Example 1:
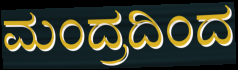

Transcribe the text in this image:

ಮಂದ್ರದಿಂದ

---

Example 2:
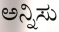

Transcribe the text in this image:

ಅನ್ನಿಸು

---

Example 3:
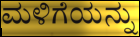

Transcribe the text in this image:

ಮಳಿಗೆಯನ್ನು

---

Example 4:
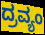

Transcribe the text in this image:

ದ್ರವ್ಯಂ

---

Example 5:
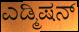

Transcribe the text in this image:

ಎಡ್ಮಿಷನ್